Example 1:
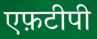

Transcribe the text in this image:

एफ़टीपी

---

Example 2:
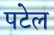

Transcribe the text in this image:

पटेल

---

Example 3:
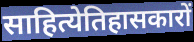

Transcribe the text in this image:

साहित्येतिहासकारों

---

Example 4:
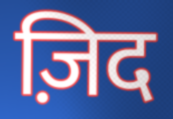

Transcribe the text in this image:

ज़िद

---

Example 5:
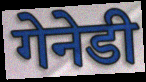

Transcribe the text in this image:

गेनेडी